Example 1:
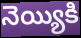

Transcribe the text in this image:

నెయ్యికి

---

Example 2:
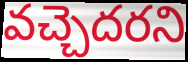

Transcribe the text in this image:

వచ్చెదరని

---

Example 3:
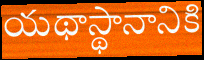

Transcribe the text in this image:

యథాస్థానానికి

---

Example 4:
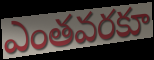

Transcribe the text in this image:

ఎంతవరకూ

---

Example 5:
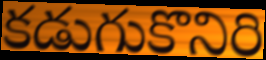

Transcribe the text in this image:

కడుగుకొనిరి